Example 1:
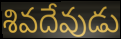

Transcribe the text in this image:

శివదేవుడు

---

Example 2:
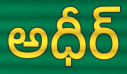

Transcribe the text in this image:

అధీర్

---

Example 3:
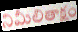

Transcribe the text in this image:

నిమీలితాక్షం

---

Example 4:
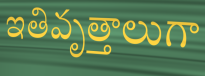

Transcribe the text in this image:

ఇతివృత్తాలుగా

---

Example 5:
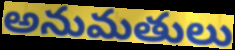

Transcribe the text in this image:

అనుమతులు